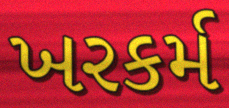
ખરકર્મ